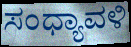
ಸಂಧ್ಯಾವಳಿ